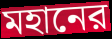
মহানের